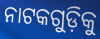
ନାଟକଗୁଡ଼ିକୁ